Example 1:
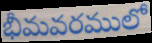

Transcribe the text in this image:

భీమవరములో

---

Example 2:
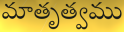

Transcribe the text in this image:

మాతృత్వము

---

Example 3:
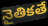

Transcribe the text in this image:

నైతికతే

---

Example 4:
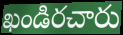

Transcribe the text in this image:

ఖండిరచారు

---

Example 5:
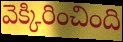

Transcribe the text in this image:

వెక్కిరించింది